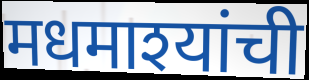
मधमाश्‍यांची